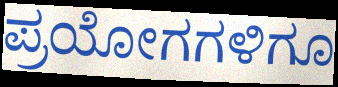
ಪ್ರಯೋಗಗಳಿಗೂ